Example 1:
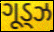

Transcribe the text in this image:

ગૂડ્ઝ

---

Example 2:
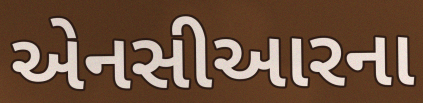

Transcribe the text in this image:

એનસીઆરના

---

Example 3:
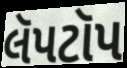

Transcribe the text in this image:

લૅપટૉપ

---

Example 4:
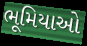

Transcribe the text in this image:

ભૂમિયાઓ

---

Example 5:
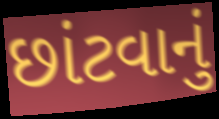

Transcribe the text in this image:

છાંટવાનું